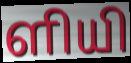
ளியி